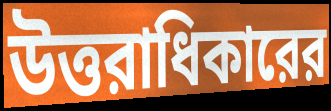
উত্তরাধিকারের